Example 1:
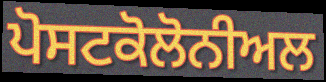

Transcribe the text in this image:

ਪੋਸਟਕੋਲੋਨੀਅਲ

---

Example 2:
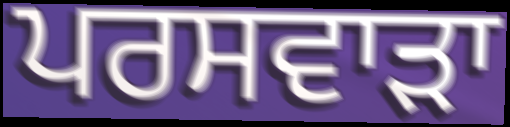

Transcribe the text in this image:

ਪਰਸਵਾੜਾ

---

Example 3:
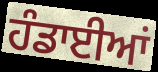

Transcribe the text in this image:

ਹੰਡਾਈਆਂ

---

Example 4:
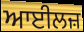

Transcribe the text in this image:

ਆਈਲਜ਼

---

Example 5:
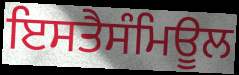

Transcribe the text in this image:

ਇਸਤੈਸੰਮਿਊਲ